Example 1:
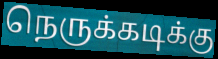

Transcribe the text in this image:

நெருக்கடிக்கு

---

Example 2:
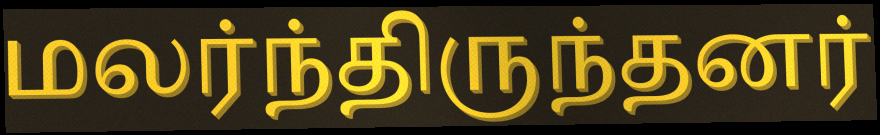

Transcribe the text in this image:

மலர்ந்திருந்தனர்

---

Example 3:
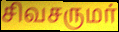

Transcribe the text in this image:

சிவசருமர்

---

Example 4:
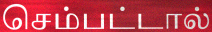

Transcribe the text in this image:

செம்பட்டால்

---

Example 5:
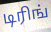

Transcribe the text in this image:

டிரிங்